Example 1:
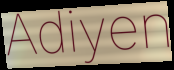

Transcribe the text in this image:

Adiyen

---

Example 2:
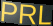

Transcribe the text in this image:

PRL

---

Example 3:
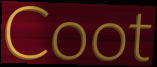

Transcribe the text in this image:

Coot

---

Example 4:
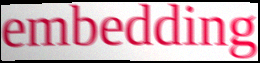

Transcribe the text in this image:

embedding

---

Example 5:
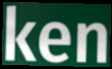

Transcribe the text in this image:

ken